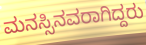
ಮನಸ್ಸಿನವರಾಗಿದ್ದರು